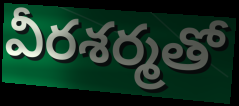
వీరశర్మతో